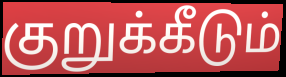
குறுக்கீடும்